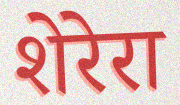
शेरेरा